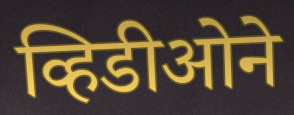
व्हिडीओने